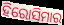
ହିରୋସିମାର